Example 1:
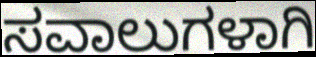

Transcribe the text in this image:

ಸವಾಲುಗಳಾಗಿ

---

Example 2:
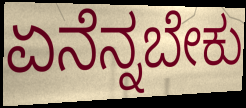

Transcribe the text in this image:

ಏನೆನ್ನಬೇಕು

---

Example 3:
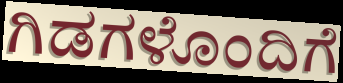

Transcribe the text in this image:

ಗಿಡಗಳೊಂದಿಗೆ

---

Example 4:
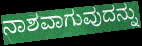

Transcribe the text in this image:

ನಾಶವಾಗುವುದನ್ನು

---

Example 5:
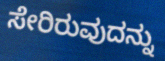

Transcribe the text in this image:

ಸೇರಿರುವುದನ್ನು